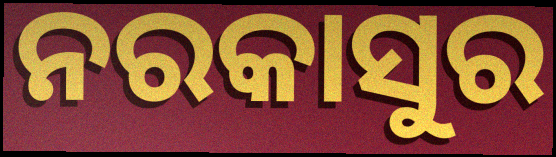
ନରକାସୁର